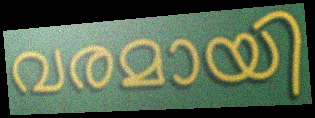
വരമായി